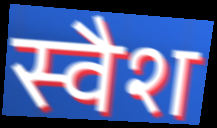
स्वैश